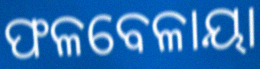
ଫଳବେଳାୟା